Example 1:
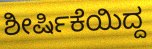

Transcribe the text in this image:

ಶೀರ್ಷಿಕೆಯಿದ್ದ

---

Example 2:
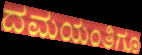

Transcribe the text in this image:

ದಮಯಂತಿಗೂ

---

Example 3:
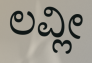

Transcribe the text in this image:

ಲವ್ಲೀ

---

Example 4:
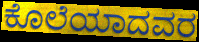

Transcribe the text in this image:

ಕೊಲೆಯಾದವರ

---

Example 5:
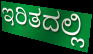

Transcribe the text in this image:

ಇರಿತದಲ್ಲಿ